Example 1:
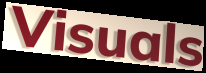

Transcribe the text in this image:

Visuals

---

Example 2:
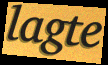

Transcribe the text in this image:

lagte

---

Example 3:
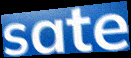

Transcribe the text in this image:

sate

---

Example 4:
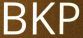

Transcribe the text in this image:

BKP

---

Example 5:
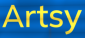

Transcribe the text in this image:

Artsy